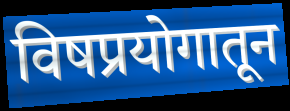
विषप्रयोगातून